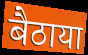
बैठाया